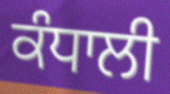
ਕੰਧਾਲੀ